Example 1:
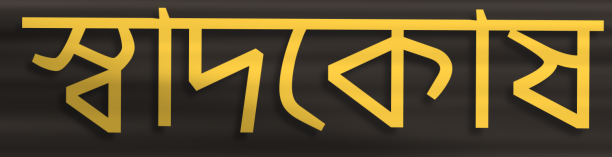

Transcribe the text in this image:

স্বাদকোষ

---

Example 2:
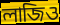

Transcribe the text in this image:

লাজিও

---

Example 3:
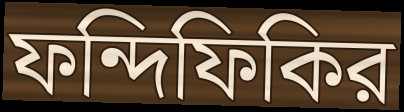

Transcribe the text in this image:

ফন্দিফিকির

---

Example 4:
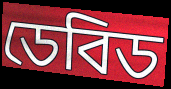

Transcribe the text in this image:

ডেবিড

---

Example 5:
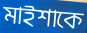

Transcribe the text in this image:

মাইশাকে